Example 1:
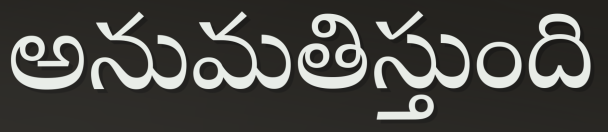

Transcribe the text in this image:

అనుమతిస్తుంది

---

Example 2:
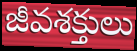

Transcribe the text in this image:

జీవశక్తులు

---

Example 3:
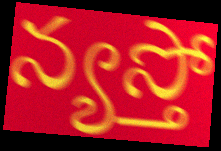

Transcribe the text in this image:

న్యస్తో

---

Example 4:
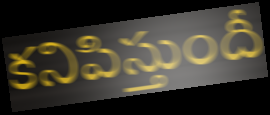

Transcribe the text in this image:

కనిపిస్తుందీ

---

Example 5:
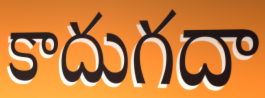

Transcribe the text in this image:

కాదుగదా